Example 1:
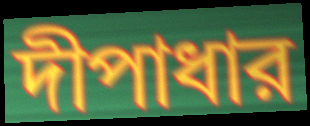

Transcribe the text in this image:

দীপাধার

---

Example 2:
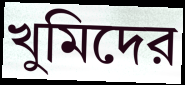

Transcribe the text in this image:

খুমিদের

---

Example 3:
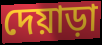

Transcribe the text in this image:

দেয়াড়া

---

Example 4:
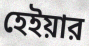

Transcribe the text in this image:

হেইয়ার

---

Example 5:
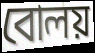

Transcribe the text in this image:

বোলয়